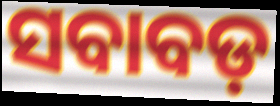
ସବାବଡ଼